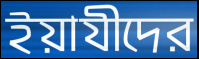
ইয়াযীদের